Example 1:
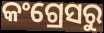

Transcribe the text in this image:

କଂଗ୍ରେସରୁ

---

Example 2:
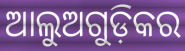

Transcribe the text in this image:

ଆଲୁଅଗୁଡ଼ିକର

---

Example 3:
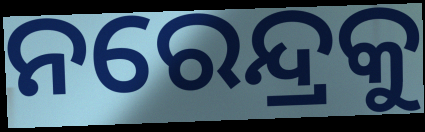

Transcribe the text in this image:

ନରେନ୍ଦ୍ରକୁ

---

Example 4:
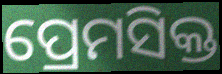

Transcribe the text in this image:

ପ୍ରେମସିକ୍ତ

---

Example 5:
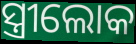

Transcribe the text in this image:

ସ୍ତ୍ରୀଲୋକ